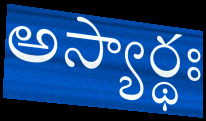
అస్యార్థః